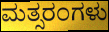
ಮತ್ಸರಂಗಳು